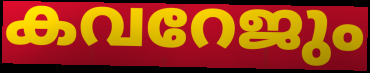
കവറേജും